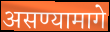
असण्यामागे